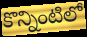
కొన్నింటిలో